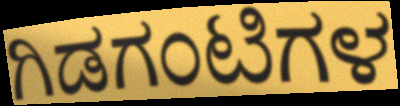
ಗಿಡಗಂಟಿಗಳ